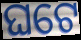
ଘଟେ